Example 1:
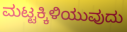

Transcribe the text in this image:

ಮಟ್ಟಕ್ಕಿಳಿಯುವುದು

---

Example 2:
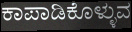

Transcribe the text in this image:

ಕಾಪಾಡಿಕೊಳ್ಳುವ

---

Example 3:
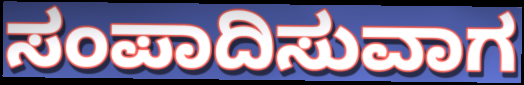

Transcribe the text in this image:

ಸಂಪಾದಿಸುವಾಗ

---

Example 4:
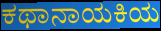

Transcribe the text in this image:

ಕಥಾನಾಯಕಿಯ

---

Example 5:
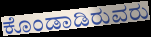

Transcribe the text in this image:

ಕೊಂಡಾಡಿರುವರು